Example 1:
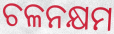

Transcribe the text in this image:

ଚଳନକ୍ଷମ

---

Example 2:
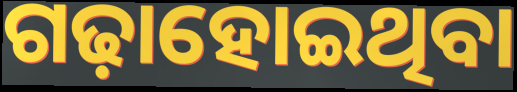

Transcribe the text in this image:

ଗଢ଼ାହୋଇଥିବା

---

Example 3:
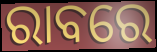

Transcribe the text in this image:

ରାବରେ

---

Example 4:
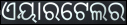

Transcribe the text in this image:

ଏୟାରଟେଲର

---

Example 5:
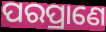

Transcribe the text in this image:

ପରପ୍ରାଣେ